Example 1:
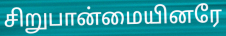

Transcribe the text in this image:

சிறுபான்மையினரே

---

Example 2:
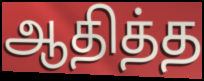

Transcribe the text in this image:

ஆதித்த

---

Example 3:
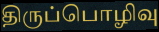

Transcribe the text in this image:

திருப்பொழிவு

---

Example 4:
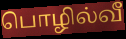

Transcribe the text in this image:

பொழில்வீ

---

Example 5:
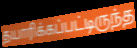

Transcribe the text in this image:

தயாரிக்கப்பட்டிருந்த